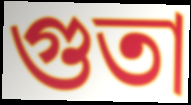
গুতা